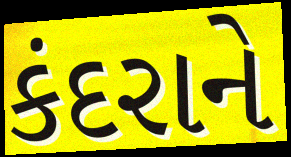
કંદરાને